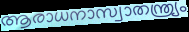
ആരാധനാസ്വാതന്ത്ര്യം